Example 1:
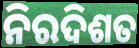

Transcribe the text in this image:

ନିରଦିଶତ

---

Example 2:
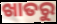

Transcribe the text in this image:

ଖାତରୁ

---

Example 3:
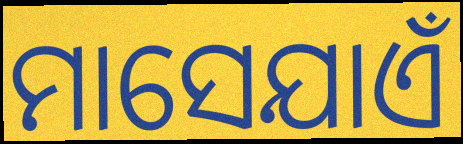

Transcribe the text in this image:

ମାସେଯାଏଁ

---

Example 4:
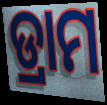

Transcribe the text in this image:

ଡ୍ରାମ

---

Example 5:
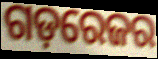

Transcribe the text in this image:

ଗଡ଼ରେଜର